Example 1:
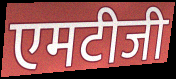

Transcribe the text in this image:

एमटीजी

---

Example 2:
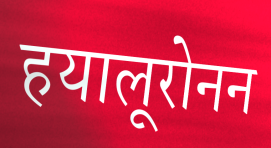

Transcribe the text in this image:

हयालूरोनन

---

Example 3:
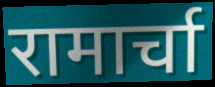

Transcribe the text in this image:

रामार्चा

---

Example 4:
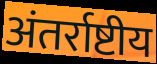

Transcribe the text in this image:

अंतर्राष्टीय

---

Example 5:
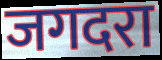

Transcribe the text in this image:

जगदरा